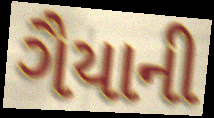
ગૈયાની